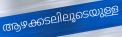
ആഴക്കടലിലൂടെയുള്ള